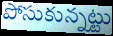
పోసుకున్నట్టు